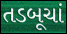
તડબૂચાં